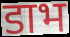
डाभ